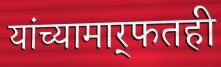
यांच्यामार्फतही